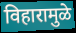
विहारामुळे